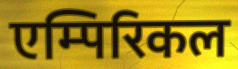
एम्पिरिकल